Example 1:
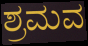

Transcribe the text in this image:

ಶ್ರಮವ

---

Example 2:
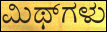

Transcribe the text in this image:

ಮಿಥ್‌ಗಳು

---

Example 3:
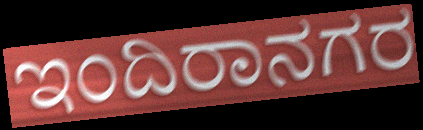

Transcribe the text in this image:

ಇಂದಿರಾನಗರ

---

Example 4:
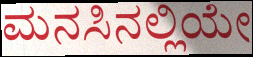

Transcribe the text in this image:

ಮನಸಿನಲ್ಲಿಯೇ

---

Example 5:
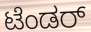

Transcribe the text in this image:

ಟೆಂಡರ್